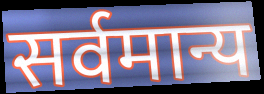
सर्वमान्य